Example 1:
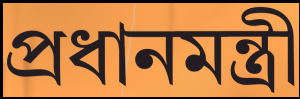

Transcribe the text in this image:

প্ৰধানমন্ত্ৰী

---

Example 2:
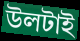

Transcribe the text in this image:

উলটাই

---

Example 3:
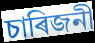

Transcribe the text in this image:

চাৰিজনী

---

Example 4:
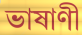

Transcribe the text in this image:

ভাষাণী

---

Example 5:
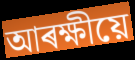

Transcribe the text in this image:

আৰক্ষীয়ে